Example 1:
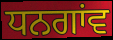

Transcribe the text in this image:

ਧਨਗਾਂਵ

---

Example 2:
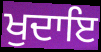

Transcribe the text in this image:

ਖੁਦਾਇ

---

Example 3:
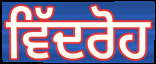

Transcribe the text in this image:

ਵਿੱਦਰੋਹ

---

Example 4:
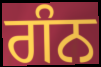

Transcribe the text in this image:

ਗੰਨ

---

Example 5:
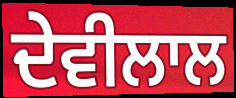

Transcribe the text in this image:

ਦੇਵੀਲਾਲ